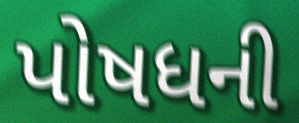
પોષધની